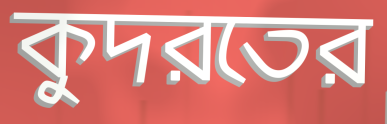
কুদরতের